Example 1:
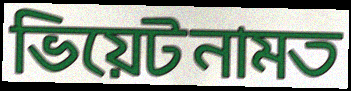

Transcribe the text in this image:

ভিয়েটনামত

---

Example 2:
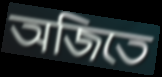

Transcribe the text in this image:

অজিতে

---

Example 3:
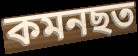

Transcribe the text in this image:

কমনছত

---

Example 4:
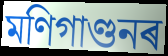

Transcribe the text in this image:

মণিগাণ্ডনৰ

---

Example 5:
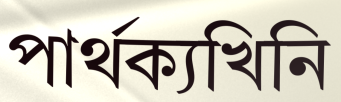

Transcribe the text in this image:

পাৰ্থক্যখিনি